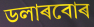
ডলাৰবোৰ